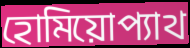
হোমিয়োপ্যাথ